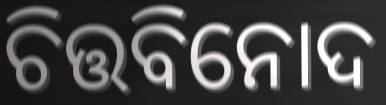
ଚିତ୍ତବିନୋଦ